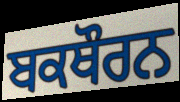
ਬਕਥੌਰਨ